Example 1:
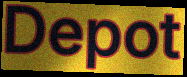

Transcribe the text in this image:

Depot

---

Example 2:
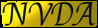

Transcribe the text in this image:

NVDA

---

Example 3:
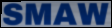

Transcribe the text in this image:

SMAW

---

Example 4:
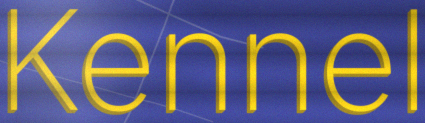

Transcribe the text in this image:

Kennel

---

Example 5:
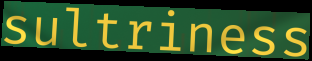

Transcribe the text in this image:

sultriness